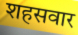
शहसवार